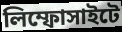
লিম্ফোসাইটে